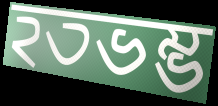
হতভম্ভ